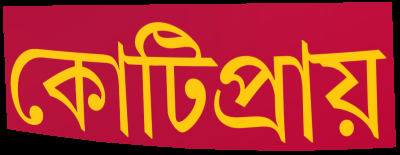
কোটিপ্ৰায়